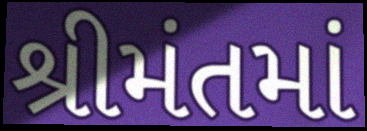
શ્રીમંતમાં